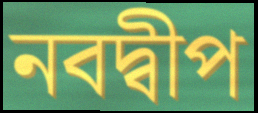
নবদ্বীপ